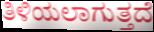
ತಿಳಿಯಲಾಗುತ್ತದೆ